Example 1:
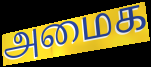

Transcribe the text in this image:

அமைக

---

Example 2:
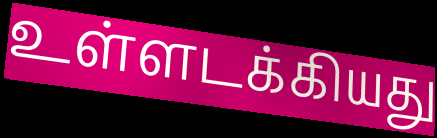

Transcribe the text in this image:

உள்ளடக்கியது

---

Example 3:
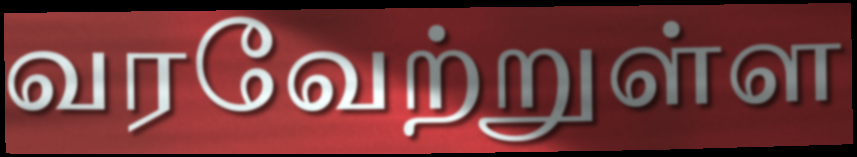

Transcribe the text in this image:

வரவேற்றுள்ள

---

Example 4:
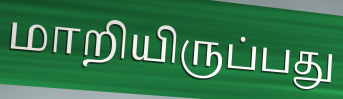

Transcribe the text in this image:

மாறியிருப்பது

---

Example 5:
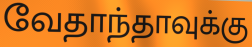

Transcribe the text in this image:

வேதாந்தாவுக்கு